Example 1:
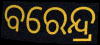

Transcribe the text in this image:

ବରେନ୍ଦ୍ର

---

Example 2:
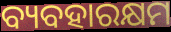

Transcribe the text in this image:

ବ୍ୟବହାରକ୍ଷମ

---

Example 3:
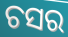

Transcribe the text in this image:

ଚସର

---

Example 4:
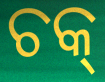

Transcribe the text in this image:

ଚକ୍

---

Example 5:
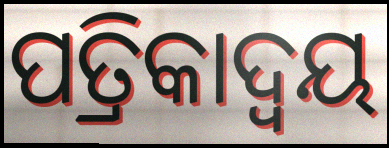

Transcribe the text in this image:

ପତ୍ରିକାଦ୍ୱୟ